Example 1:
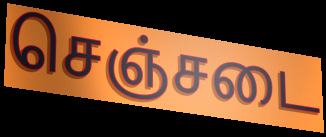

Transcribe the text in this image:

செஞ்சடை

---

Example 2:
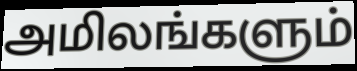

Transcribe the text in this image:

அமிலங்களும்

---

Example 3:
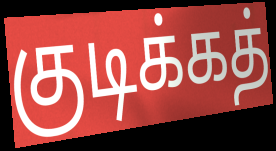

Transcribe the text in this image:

குடிக்கத்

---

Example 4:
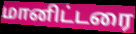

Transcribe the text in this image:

மானிட்டரை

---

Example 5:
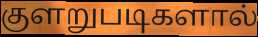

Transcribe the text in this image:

குளறுபடிகளால்